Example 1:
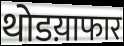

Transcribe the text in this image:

थोडय़ाफार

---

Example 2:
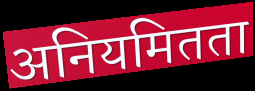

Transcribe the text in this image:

अनियमितता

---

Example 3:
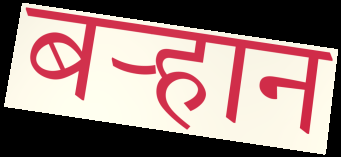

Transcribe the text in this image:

बऱ्हान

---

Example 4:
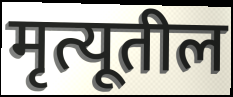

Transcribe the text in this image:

मृत्यूतील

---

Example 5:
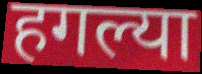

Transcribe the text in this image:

हगल्या